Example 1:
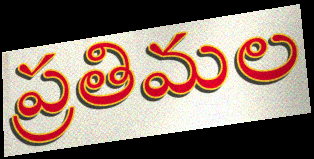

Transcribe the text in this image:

ప్రతిమల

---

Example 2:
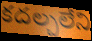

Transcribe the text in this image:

కదల్చలేని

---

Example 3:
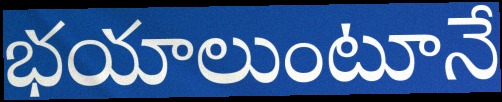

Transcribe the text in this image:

భయాలుంటూనే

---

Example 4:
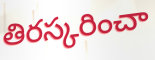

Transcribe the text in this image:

తిరస్కరించా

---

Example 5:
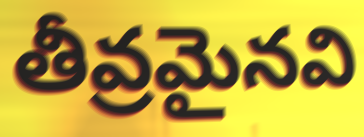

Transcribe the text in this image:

తీవ్రమైనవి